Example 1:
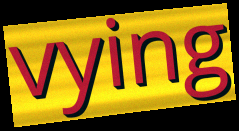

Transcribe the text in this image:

vying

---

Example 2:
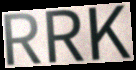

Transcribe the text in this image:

RRK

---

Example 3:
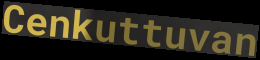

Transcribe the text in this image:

Cenkuttuvan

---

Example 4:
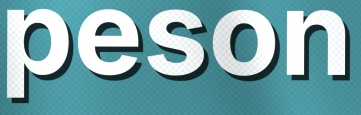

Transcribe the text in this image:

peson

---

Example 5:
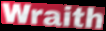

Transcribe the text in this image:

Wraith